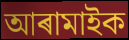
আৰামাইক